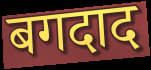
बगदाद